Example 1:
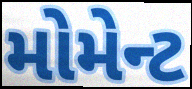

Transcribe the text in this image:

મોમેન્ટ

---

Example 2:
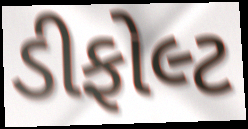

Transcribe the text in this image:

ડીફોલ્ટ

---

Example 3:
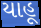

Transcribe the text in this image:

યાહૂ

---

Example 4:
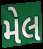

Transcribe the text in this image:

મેલ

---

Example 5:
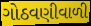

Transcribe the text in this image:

ગોઠવણીવાળી